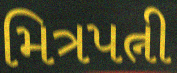
મિત્રપત્ની